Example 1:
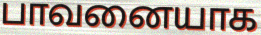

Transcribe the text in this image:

பாவனையாக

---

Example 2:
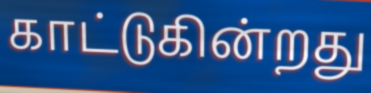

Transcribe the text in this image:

காட்டுகின்றது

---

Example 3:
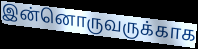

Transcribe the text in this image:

இன்னொருவருக்காக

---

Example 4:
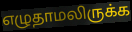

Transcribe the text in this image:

எழுதாமலிருக்க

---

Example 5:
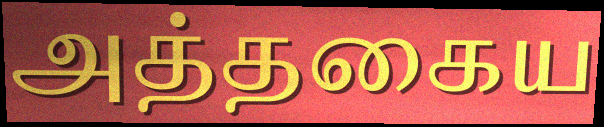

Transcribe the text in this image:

அத்தகைய